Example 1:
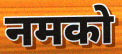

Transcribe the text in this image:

नमको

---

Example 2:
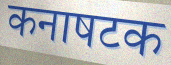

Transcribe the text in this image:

कनाषटक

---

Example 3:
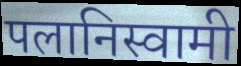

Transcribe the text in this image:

पलानिस्वामी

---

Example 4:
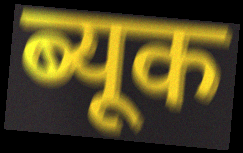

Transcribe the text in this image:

ब्यूक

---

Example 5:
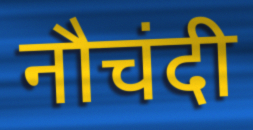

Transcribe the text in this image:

नौचंदी